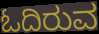
ಓದಿರುವ